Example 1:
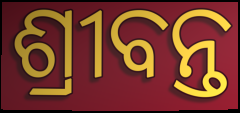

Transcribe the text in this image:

ଶ୍ରୀବନ୍ତ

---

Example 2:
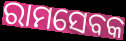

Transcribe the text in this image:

ରାମସେବକ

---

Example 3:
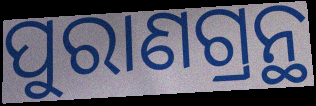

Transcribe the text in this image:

ପୁରାଣଗ୍ରନ୍ଥ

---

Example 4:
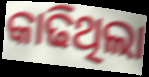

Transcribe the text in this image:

କାଢିଥିଲା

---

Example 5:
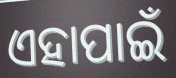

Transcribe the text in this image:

ଏହାପାଇଁ